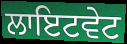
ਲਾਇਟਵੇਟ